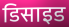
डिसाइड